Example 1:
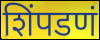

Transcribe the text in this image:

शिंपडणं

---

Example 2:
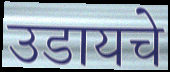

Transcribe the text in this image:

उडायचे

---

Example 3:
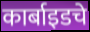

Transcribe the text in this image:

कार्बाइडचे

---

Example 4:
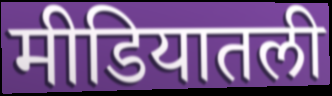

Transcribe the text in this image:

मीडियातली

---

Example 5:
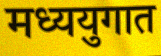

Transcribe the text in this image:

मध्ययुगात